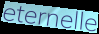
eternelle